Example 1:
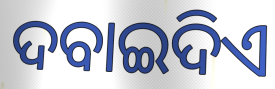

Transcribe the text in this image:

ଦବାଇଦିଏ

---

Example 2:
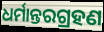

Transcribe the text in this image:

ଧର୍ମାନ୍ତରଗ୍ରହଣ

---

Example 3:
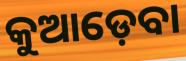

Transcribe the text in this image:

କୁଆଡ଼େବା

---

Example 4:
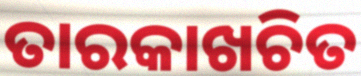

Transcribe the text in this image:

ତାରକାଖଚିତ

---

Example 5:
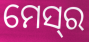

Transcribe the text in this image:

ମେସ୍‌ର